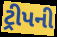
ટ્રીપની